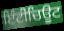
ਇੰਟੀਚਿਊਟ